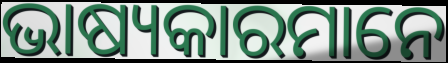
ଭାଷ୍ୟକାରମାନେ